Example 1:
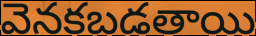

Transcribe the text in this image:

వెనకబడతాయి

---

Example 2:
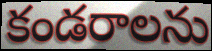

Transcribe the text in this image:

కండరాలను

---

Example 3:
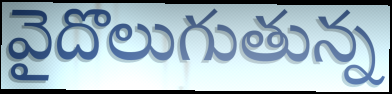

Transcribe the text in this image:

వైదొలుగుతున్న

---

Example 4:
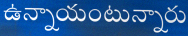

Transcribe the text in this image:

ఉన్నాయంటున్నారు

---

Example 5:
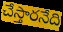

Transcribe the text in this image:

చేస్తారనేది